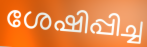
ശേഷിപ്പിച്ച